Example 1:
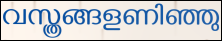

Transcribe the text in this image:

വസ്ത്രങ്ങളണിഞ്ഞു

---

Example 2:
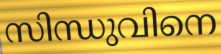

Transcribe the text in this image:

സിന്ധുവിനെ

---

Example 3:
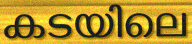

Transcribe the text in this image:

കടയിലെ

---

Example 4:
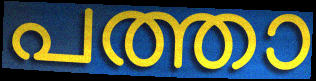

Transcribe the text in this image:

പത്താ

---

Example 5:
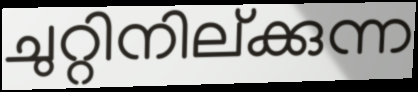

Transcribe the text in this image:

ചുറ്റിനില്ക്കുന്ന